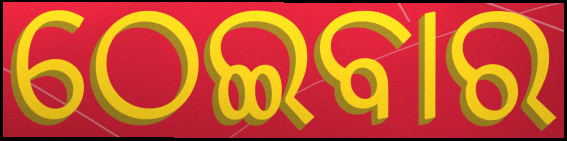
ଠେଇବାର